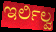
ಇರ್ಲಿಲ್ವ